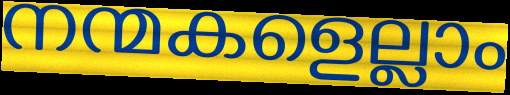
നന്മകളെല്ലാം